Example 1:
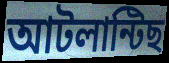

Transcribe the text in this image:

আটলান্টিছ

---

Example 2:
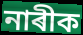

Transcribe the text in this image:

নাৰীক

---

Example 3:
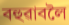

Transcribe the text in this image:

বহুৱাবলৈ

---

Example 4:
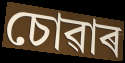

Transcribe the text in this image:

চোৱাৰ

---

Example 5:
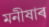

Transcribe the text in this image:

মনীষাৰ